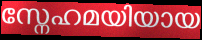
സ്നേഹമയിയായ